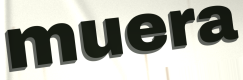
muera